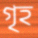
গৃহ